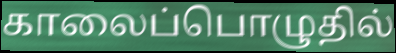
காலைப்பொழுதில்